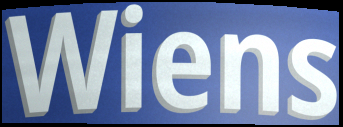
Wiens